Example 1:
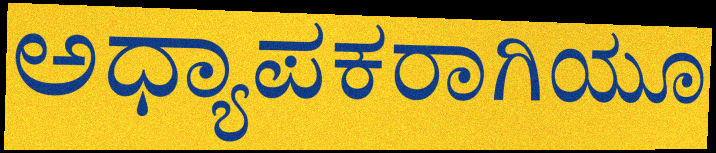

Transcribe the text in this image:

ಅಧ್ಯಾಪಕರಾಗಿಯೂ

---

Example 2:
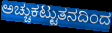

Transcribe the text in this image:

ಅಚ್ಚುಕಟ್ಟುತನದಿಂದ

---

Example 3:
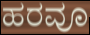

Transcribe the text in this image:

ಹರವೂ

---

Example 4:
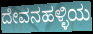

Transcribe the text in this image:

ದೇವನಹಳ್ಳಿಯ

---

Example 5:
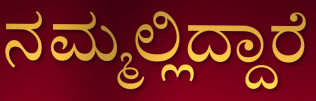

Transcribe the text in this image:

ನಮ್ಮಲ್ಲಿದ್ದಾರೆ